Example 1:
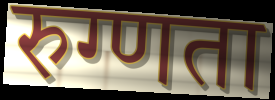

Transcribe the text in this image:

रुग्णता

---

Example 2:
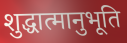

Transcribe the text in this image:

शुद्धात्मानुभूति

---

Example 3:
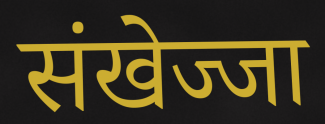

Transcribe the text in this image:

संखेज्जा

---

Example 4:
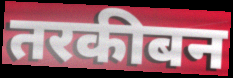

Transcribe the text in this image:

तरकीबन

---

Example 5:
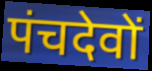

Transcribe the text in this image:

पंचदेवों